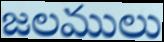
జలములు